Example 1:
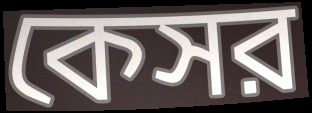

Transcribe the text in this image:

কেসর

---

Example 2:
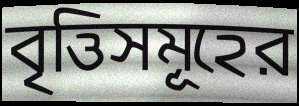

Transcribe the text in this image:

বৃত্তিসমূহের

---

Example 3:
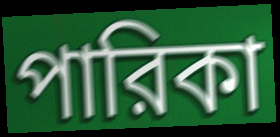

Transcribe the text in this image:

পারিকা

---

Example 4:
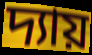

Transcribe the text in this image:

দ্যায়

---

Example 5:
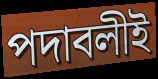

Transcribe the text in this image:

পদাবলীই